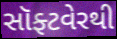
સૉફ્ટવેરથી